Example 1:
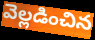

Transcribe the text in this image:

వెల్లడించిన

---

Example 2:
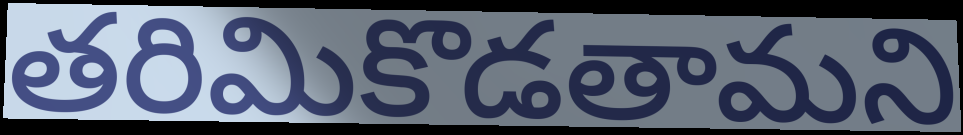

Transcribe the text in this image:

తరిమికొడతామని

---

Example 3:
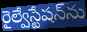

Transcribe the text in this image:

రైల్వేస్టేషన్‌ను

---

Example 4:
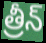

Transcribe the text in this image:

త్రీన్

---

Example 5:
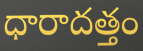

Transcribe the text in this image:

ధారాదత్తం